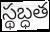
స్థబ్ధత